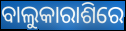
ବାଲୁକାରାଶିରେ